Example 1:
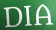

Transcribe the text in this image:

DIA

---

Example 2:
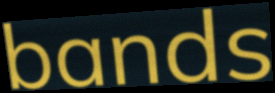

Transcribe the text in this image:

bands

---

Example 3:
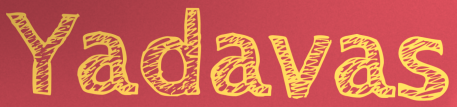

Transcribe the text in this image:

Yadavas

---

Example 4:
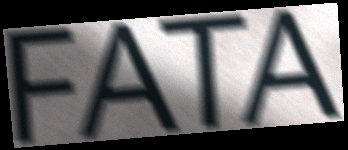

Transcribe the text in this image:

FATA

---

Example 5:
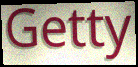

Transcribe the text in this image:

Getty